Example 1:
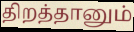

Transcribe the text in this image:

திறத்தானும்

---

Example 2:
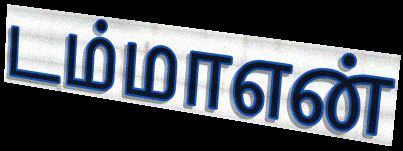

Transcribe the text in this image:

டம்மாஎன்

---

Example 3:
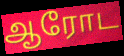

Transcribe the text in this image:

ஆரோட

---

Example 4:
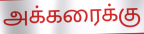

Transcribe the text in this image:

அக்கரைக்கு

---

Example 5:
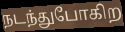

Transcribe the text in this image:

நடந்துபோகிற